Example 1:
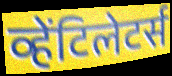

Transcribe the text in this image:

व्हेंटिलेटर्स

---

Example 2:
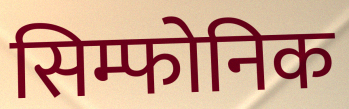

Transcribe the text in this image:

सिम्फोनिक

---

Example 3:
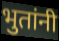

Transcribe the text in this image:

भुतांनी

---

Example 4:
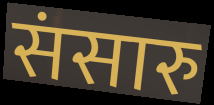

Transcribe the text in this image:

संसारु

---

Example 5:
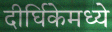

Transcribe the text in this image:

दीर्घिकेमध्ये